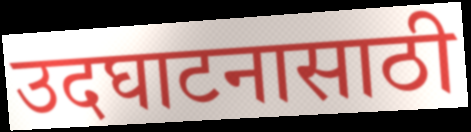
उदघाटनासाठी